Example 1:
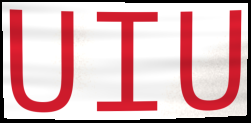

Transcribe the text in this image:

UIU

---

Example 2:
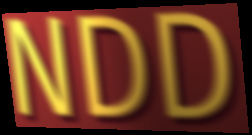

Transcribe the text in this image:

NDD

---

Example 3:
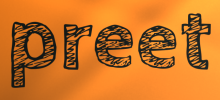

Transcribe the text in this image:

preet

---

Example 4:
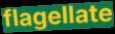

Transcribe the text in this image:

flagellate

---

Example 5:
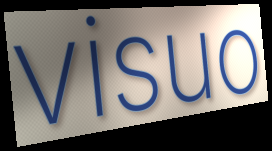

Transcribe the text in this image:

visuo